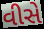
વીસે